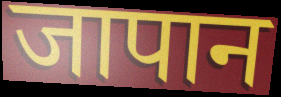
जापान